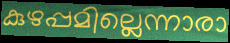
കുഴപ്പമില്ലെന്നാരാ